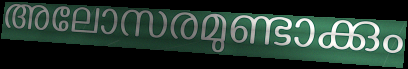
അലോസരമുണ്ടാക്കും